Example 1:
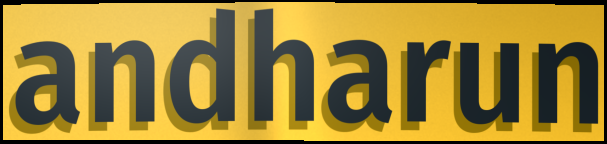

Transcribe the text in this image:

andharun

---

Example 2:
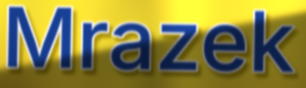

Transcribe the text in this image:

Mrazek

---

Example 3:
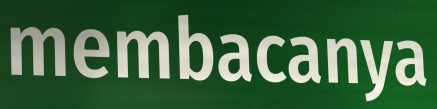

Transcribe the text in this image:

membacanya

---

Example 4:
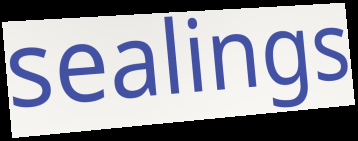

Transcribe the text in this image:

sealings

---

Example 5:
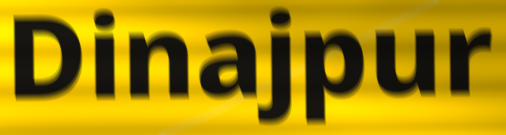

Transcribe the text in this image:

Dinajpur